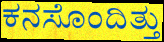
ಕನಸೊಂದಿತ್ತು